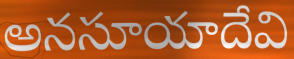
అనసూయాదేవి